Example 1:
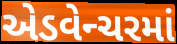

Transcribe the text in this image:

એડવેન્ચરમાં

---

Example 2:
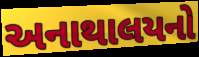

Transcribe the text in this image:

અનાથાલયનો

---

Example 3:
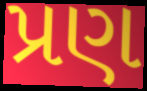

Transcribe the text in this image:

પ્રણ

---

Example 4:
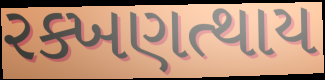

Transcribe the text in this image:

રક્ખણત્થાય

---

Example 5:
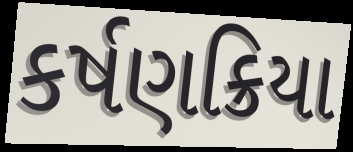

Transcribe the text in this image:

કર્ષણક્રિયા